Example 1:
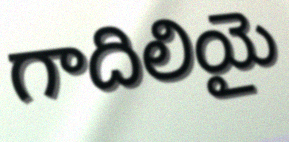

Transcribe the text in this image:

గాదిలియై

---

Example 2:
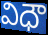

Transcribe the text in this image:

విధౌ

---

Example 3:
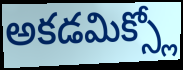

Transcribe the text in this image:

అకడమిక్స్లో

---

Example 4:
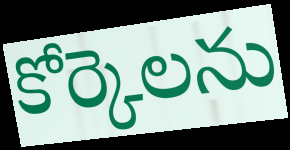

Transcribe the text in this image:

కోర్కెలను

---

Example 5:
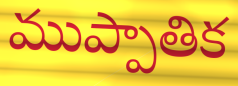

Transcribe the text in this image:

ముప్పాతిక